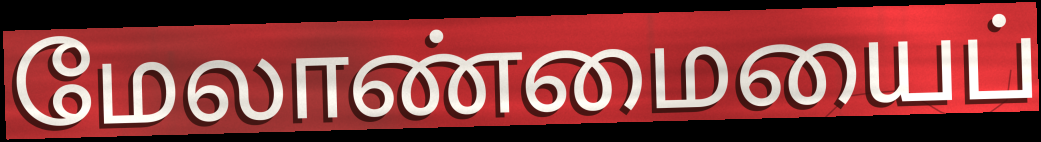
மேலாண்மையைப்